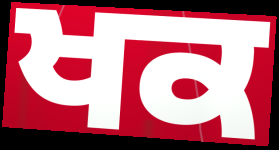
ਖਕ